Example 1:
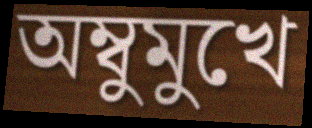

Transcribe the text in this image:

অম্বুমুখে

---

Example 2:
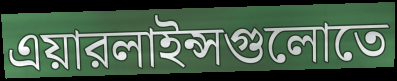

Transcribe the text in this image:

এয়ারলাইন্সগুলোতে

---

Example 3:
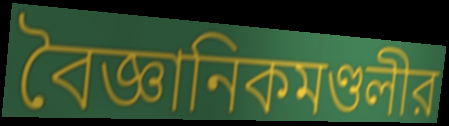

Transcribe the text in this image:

বৈজ্ঞানিকমণ্ডলীর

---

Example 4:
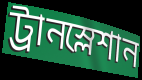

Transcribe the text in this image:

ট্রানস্লেশান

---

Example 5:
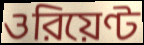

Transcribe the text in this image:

ওরিয়েণ্ট